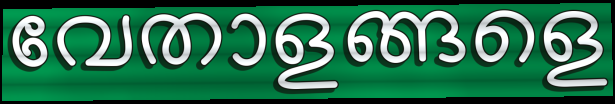
വേതാളങ്ങളെ